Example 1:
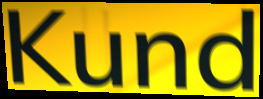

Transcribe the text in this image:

Kund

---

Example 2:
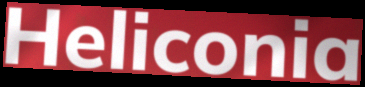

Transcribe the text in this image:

Heliconia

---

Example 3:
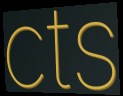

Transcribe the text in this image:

cts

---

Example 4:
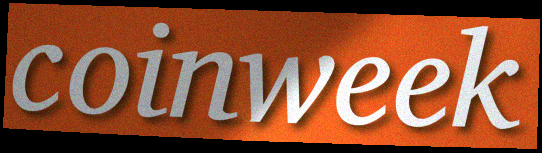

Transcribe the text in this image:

coinweek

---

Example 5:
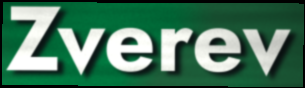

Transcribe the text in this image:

Zverev